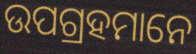
ଉପଗ୍ରହମାନେ